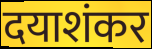
दयाशंकर